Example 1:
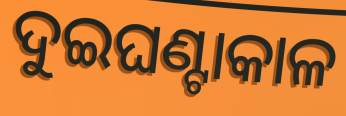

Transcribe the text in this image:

ଦୁଇଘଣ୍ଟାକାଳ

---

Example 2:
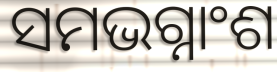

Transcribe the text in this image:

ସମଭଗ୍ନାଂଶ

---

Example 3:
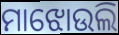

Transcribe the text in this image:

ମାଝୋଉଲି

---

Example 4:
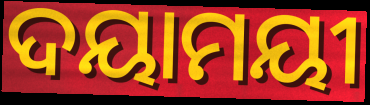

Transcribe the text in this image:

ଦୟାମୟୀ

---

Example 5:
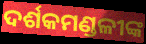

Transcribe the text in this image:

ଦର୍ଶକମଣ୍ଡଳୀଙ୍କ